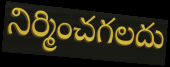
నిర్మించగలదు